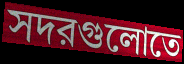
সদরগুলোতে